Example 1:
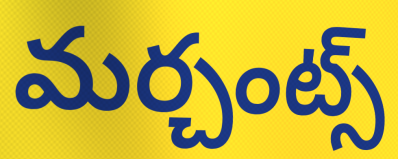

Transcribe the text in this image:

మర్చంట్స్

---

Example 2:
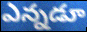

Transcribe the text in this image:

ఎన్నడూ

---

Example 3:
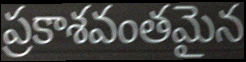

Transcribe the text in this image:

ప్రకాశవంతమైన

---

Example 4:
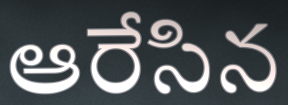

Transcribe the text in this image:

ఆరేసిన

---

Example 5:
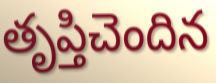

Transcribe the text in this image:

తృప్తిచెందిన